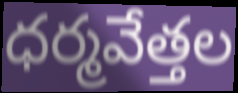
ధర్మవేత్తల